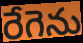
రేగెను